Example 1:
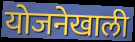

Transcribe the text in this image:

योजनेखाली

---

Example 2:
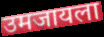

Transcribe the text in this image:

उमजायला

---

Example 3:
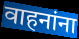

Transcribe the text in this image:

वाहनांना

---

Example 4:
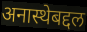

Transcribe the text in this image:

अनास्थेबद्दल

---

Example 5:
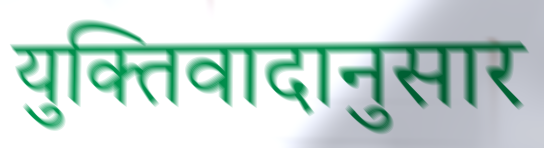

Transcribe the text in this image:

युक्तिवादानुसार